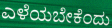
ಎಳೆಯಬೇಕೆಂದು